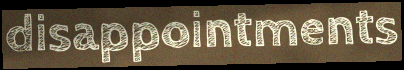
disappointments